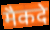
मैकदे